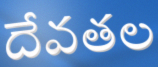
దేవతల